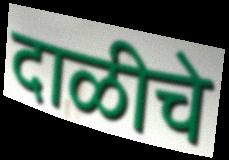
दाळीचे